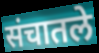
संचातले